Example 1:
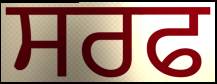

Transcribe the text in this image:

ਸਰਫ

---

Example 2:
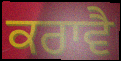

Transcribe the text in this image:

ਕਰਾਵੈ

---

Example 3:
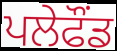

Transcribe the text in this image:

ਪਲੇਫੌਂਡ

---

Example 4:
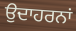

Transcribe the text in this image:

ਉਦਾਹਰਨਾਂ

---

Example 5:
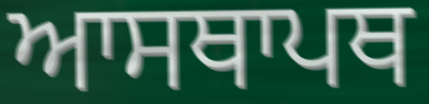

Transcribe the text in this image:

ਆਸਥਾਪਥ